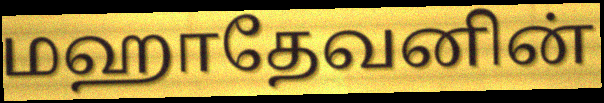
மஹாதேவனின்